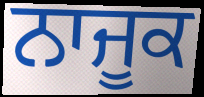
ਨਾਜੂਕ